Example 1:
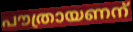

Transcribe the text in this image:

പൗത്രായണന്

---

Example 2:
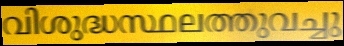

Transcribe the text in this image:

വിശുദ്ധസ്ഥലത്തുവച്ചു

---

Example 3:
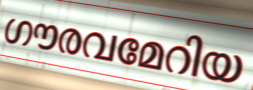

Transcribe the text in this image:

ഗൗരവമേറിയ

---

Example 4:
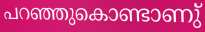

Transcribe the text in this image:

പറഞ്ഞുകൊണ്ടാണു്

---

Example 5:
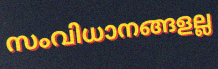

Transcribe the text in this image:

സംവിധാനങ്ങളല്ല